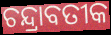
ଚନ୍ଦ୍ରାବତୀକ